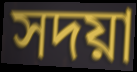
সদয়া